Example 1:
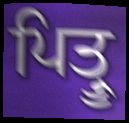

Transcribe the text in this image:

ਪਿਤ੍ਰੂ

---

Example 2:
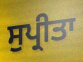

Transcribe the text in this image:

ਸੁਪ੍ਰੀਤਾ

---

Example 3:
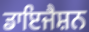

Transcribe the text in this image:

ਡਾਇਜੈਸ਼ਨ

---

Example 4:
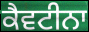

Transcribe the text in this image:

ਕੈਵਟੀਨਾ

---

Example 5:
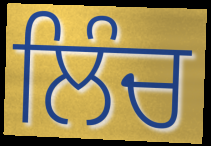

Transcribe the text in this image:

ਲਿੰਚ